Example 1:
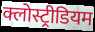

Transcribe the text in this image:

क्लोस्ट्रीडियम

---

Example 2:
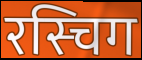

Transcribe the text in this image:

रस्चिग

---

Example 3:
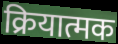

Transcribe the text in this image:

क्रियात्मक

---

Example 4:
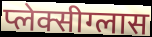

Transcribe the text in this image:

प्लेक्सीग्लास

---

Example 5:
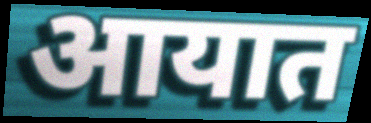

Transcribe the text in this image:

आयात